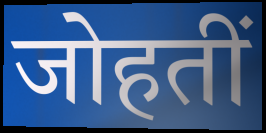
जोहतीं